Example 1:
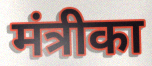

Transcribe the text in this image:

मंत्रीका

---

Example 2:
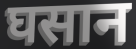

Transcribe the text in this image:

घसान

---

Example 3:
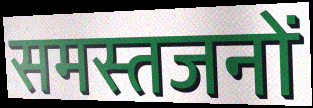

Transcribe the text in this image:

समस्तजनों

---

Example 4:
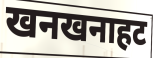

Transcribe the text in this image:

खनखनाहट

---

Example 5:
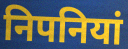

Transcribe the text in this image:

निपनियां